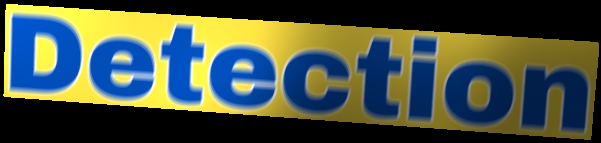
Detection